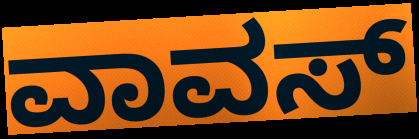
ವಾವಸ್